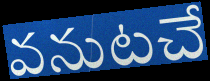
వనుటచే